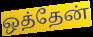
ஒத்தேன்